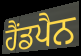
ਹੈਂਡਪੈਨ